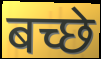
बच्छे